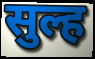
सुल्ह